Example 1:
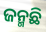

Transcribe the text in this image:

ଜନ୍ମଛି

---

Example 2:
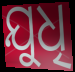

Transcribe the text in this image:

ଯୁଧି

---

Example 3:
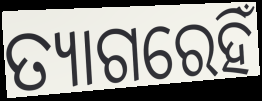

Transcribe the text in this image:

ତ୍ୟାଗରେହିଁ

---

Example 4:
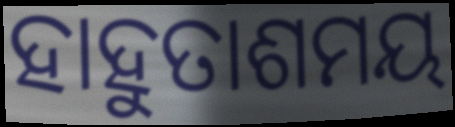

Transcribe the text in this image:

ହାହୁତାଶମୟ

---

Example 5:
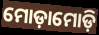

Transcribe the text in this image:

ମୋଡ଼ାମୋଡ଼ି